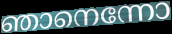
ഞാനെന്നോ